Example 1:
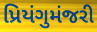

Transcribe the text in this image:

પ્રિયંગુમંજરી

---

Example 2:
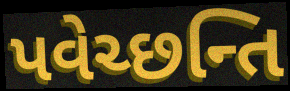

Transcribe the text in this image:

પવેચ્છન્તિ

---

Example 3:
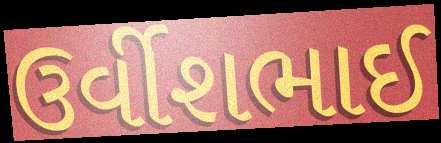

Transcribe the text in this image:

ઉર્વીશભાઈ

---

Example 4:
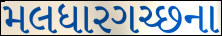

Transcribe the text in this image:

મલધારગચ્છના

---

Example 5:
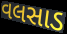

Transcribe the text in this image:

વલસાડ